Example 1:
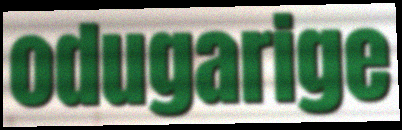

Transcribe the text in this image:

odugarige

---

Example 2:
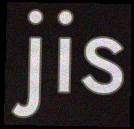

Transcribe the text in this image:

jis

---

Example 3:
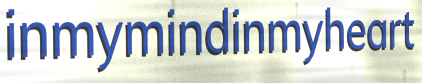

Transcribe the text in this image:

inmymindinmyheart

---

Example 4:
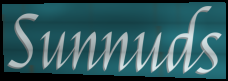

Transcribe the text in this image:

Sunnuds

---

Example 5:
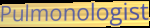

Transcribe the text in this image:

Pulmonologist